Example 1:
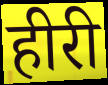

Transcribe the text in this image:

हीरी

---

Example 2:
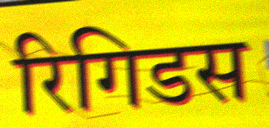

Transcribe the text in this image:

रिगिडस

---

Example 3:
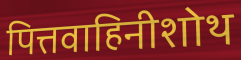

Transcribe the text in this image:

पित्तवाहिनीशोथ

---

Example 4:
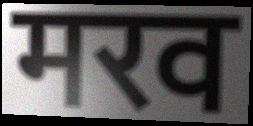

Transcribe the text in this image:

मरव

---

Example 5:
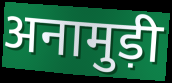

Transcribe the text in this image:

अनामुड़ी